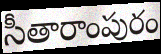
సీతారాంపురం